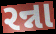
રન્ના